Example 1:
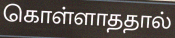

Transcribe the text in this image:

கொள்ளாததால்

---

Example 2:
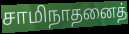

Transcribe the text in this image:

சாமிநாதனைத்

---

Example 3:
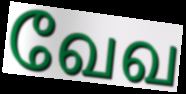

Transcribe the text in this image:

வேவ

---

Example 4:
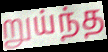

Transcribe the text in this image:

றுய்ந்த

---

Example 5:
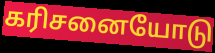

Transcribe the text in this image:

கரிசனையோடு